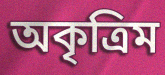
অকৃত্রিম